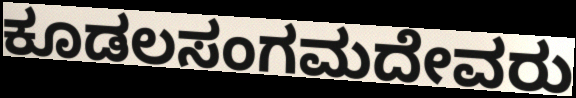
ಕೂಡಲಸಂಗಮದೇವರು